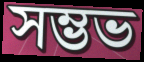
সম্ভভ